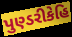
પુણ્ડરીકેહિ